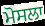
ਮੋਸਲਾ